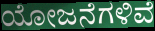
ಯೋಜನೆಗಳಿವೆ